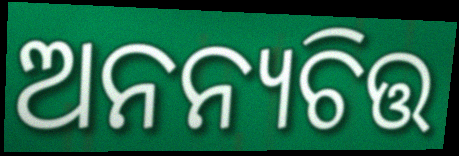
ଅନନ୍ୟଚିତ୍ତ